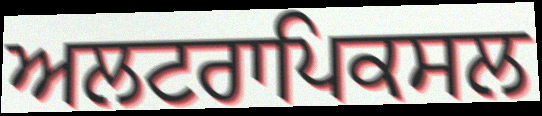
ਅਲਟਰਾਪਿਕਸਲ